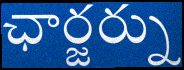
ఛార్జర్ను